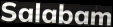
Salabam